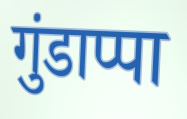
गुंडाप्पा